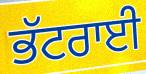
ਭੱਟਰਾਈ